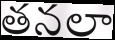
తనలా